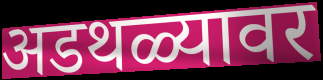
अडथळ्यावर